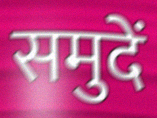
समुदें